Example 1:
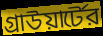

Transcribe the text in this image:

গ্রাউয়ার্টের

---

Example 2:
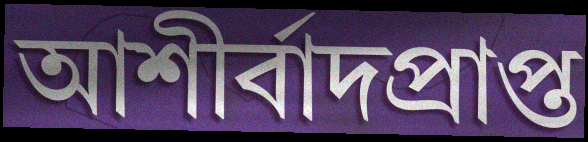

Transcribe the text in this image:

আশীর্বাদপ্রাপ্ত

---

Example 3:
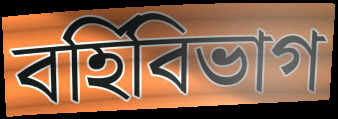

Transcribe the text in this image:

বর্হিবিভাগ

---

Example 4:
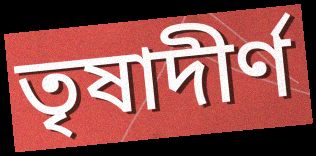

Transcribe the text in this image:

তৃষাদীর্ণ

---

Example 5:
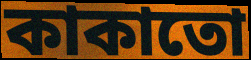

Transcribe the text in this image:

কাকাতো